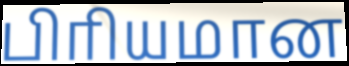
பிரியமான